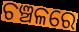
ଚଞ୍ଚଳରେ